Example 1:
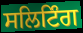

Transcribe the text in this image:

ਸਲਿਟਿੰਗ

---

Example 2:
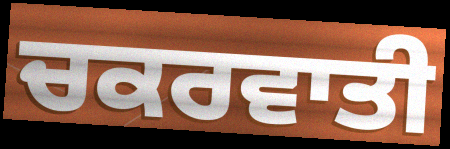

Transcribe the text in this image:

ਚਕਰਵਾਤੀ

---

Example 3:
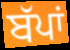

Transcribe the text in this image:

ਬੱਪਾਂ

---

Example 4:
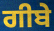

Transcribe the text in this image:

ਗੀਬੇ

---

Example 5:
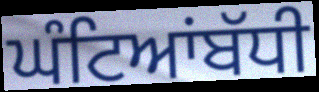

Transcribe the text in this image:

ਘੰਟਿਆਂਬੱਧੀ